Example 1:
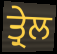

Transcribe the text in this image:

ਤ੍ਰੇਲ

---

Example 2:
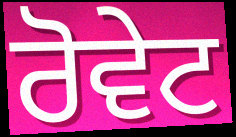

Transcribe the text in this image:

ਰੋਵੇਟ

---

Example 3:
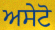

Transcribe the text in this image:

ਅਸੇਟੋ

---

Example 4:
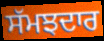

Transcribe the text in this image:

ਸੱਮਝਦਾਰ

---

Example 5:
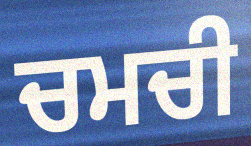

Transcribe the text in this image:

ਚਮਚੀ